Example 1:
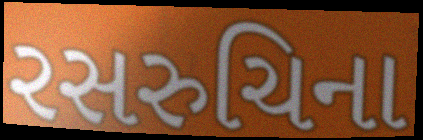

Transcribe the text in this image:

રસરુચિના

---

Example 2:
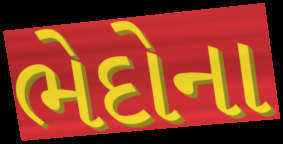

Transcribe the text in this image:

ભેદોના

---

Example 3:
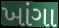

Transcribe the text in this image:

ખાંગા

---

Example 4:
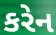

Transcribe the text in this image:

કરેન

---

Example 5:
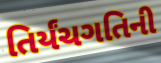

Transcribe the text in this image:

તિર્યંચગતિની